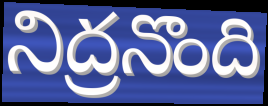
నిద్రనొంది